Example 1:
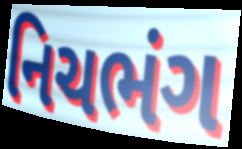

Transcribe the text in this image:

નિચભંગ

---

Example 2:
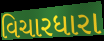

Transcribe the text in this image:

વિચારધારા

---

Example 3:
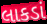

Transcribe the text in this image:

લાકડાં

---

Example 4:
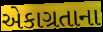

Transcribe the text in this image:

એકાગ્રતાના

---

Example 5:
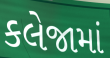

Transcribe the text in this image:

કલેજામાં